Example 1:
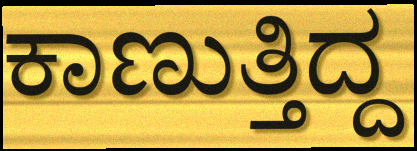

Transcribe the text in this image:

ಕಾಣುತ್ತಿದ್ದ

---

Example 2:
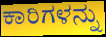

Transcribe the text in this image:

ಕಾರಿಗಳನ್ನು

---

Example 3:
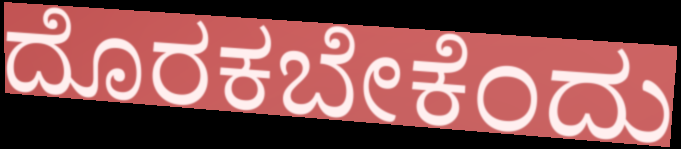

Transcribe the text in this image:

ದೊರಕಬೇಕೆಂದು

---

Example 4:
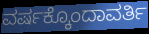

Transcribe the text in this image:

ವರ್ಷಕ್ಕೊಂದಾವರ್ತಿ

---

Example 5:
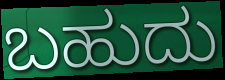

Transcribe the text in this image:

ಬಹುದು